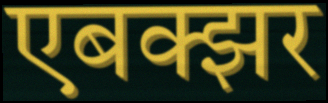
एबक्झर